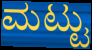
ಮಟ್ಟು